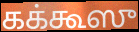
கக்கூஸு